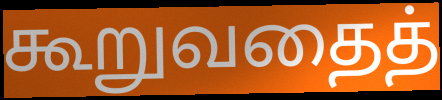
கூறுவதைத்